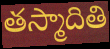
తస్మాదితి